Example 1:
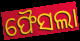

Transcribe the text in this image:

ଫୈସଲା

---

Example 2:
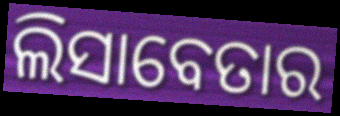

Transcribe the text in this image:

ଲିସାବେତାର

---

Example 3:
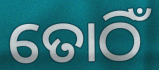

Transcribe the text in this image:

ତୋଠିଁ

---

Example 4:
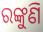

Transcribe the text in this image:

ରଙ୍କୁଣି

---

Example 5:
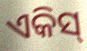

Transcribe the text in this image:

ଏକିସ୍